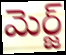
మెర్జ్